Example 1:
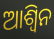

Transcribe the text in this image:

ଆଶ୍ୱିନ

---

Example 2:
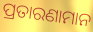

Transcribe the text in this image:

ପ୍ରତାରଣାମାନ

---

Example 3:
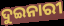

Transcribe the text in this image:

ଦୁଇନାରୀ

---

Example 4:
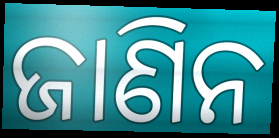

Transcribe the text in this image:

ଜାଣିନ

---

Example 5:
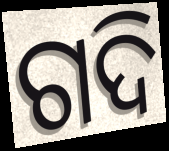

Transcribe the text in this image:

ଗଦି